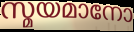
സ്മയമാനോ